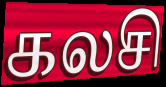
கலசி